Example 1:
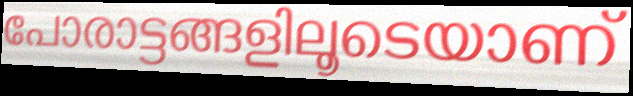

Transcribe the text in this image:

പോരാട്ടങ്ങളിലൂടെയാണ്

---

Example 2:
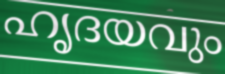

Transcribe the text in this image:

ഹൃദയവും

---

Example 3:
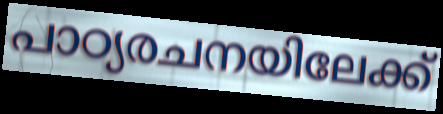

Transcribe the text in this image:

പാഠ്യരചനയിലേക്ക്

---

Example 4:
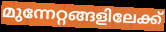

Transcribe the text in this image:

മുന്നേറ്റങ്ങളിലേക്ക്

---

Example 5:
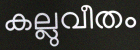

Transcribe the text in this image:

കല്ലുവീതം